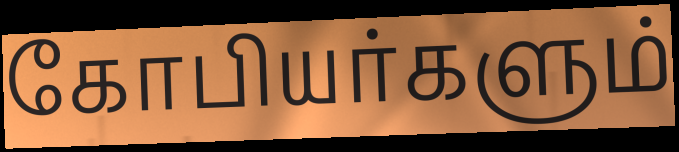
கோபியர்களும்